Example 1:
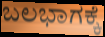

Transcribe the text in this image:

ಬಲಭಾಗಕ್ಕೆ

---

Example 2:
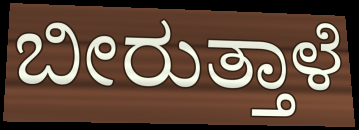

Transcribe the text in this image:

ಬೀರುತ್ತಾಳೆ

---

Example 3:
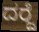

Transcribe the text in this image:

ದರ‍್ಜೆ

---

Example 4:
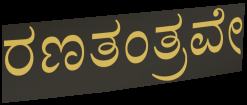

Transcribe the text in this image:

ರಣತಂತ್ರವೇ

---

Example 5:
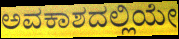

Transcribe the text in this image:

ಅವಕಾಶದಲ್ಲಿಯೇ